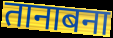
तानाबना